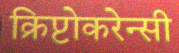
क्रिप्टोकरेन्सी